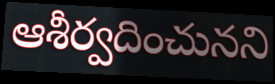
ఆశీర్వదించునని